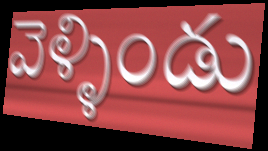
వెళ్ళిండు